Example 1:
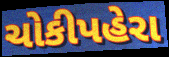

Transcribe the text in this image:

ચોકીપહેરા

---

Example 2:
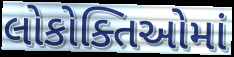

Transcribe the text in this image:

લોકોક્તિઓમાં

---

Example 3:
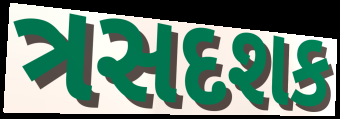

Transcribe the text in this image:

ત્રસદશક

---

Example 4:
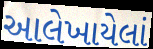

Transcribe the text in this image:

આલેખાયેલાં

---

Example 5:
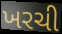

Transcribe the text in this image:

ખરચી